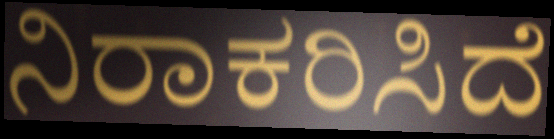
ನಿರಾಕರಿಸಿದೆ